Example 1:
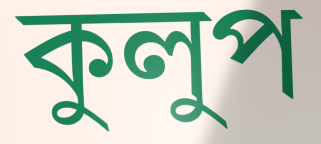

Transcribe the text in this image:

কুলুপ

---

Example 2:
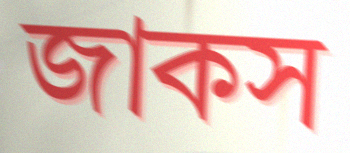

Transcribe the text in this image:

জাকস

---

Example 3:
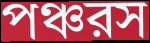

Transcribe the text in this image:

পঞ্চরস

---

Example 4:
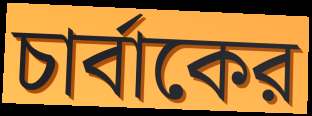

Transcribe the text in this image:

চার্বাকের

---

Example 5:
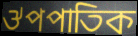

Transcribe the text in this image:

ঔপপাতিক